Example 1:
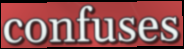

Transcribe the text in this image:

confuses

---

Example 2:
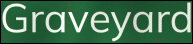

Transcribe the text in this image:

Graveyard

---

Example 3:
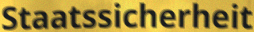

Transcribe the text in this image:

Staatssicherheit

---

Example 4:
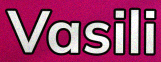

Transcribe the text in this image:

Vasili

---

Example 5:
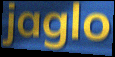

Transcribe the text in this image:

jaglo